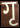
गृ